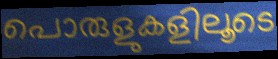
പൊരുളുകളിലൂടെ